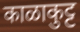
काळाकुट्ट